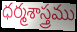
ధర్మశాస్త్రము